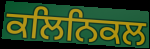
ਕਲਿਨਿਕਲ